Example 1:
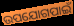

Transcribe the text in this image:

ଉପଯୋଗପାଇଁ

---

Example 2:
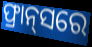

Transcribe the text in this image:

ଫ୍ରାନ୍‌ସରେ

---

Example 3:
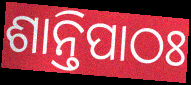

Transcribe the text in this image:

ଶାନ୍ତିପାଠଃ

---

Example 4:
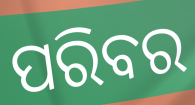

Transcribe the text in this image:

ପରିବର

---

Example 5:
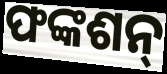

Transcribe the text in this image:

ଫଙ୍କଶନ୍